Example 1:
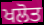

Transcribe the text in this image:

ਖਲੋਤ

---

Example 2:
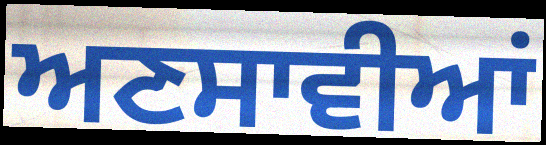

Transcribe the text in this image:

ਅਣਸਾਵੀਆਂ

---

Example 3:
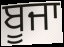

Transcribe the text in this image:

ਬੂਜਾ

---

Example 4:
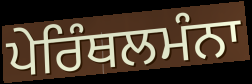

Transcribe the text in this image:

ਪੇਰਿੰਥਲਮੰਨਾ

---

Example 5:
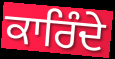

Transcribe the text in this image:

ਕਾਰਿੰਦੇ